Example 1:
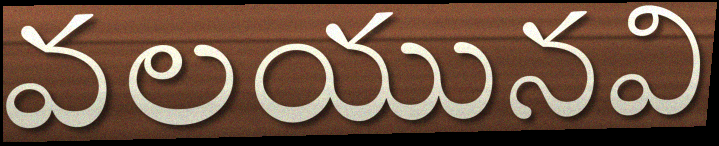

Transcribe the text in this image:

వలయునవి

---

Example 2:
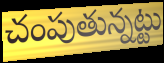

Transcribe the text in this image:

చంపుతున్నట్టు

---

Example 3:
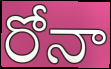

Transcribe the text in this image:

రోనా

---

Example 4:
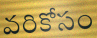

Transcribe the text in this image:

వరికోసం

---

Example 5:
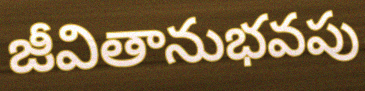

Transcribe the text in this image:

జీవితానుభవపు